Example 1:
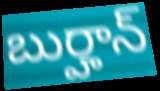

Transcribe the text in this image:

బుర్హాన్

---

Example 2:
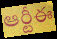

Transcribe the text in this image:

ఆర్టీఈ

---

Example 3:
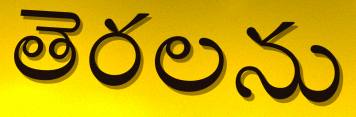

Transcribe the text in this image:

తెరలను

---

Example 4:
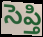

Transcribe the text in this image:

సెప్తి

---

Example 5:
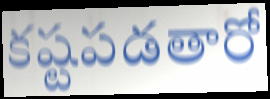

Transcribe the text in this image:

కష్టపడతారో